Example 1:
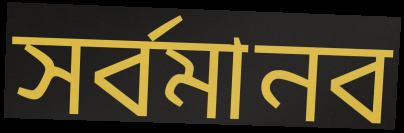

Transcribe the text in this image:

সর্বমানব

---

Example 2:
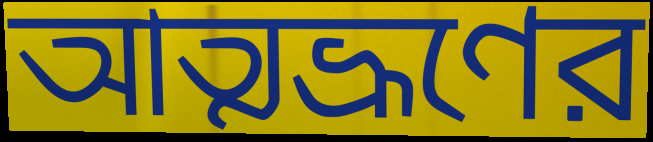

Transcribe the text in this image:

আত্মভ্রূণের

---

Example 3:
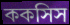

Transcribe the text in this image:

ককসিস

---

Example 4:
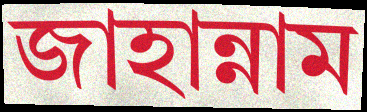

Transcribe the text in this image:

জাহান্নাম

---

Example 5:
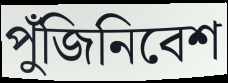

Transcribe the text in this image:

পুঁজিনিবেশ